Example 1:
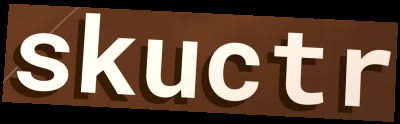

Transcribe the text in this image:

skuctr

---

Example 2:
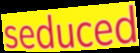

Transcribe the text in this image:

seduced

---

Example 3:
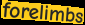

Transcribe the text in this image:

forelimbs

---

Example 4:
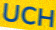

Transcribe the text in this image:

UCH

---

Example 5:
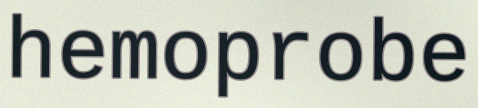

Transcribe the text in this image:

hemoprobe